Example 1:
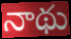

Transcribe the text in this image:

నాథు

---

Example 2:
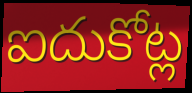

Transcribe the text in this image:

ఐదుకోట్ల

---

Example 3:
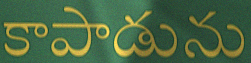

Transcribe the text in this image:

కాపాడును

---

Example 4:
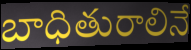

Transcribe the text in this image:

బాధితురాలినే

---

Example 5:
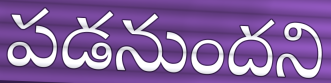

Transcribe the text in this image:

పడనుందని